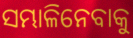
ସମ୍ଭାଳିନେବାକୁ